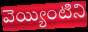
వెయ్యింటిని